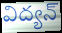
విద్యన్